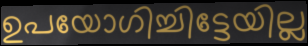
ഉപയോഗിച്ചിട്ടേയില്ല